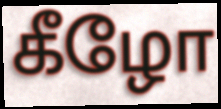
கீழோ